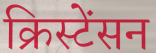
क्रिस्टेंसन